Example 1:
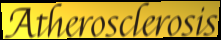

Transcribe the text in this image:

Atherosclerosis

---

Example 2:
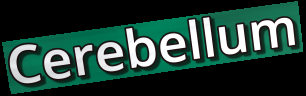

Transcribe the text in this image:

Cerebellum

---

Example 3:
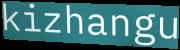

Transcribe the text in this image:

kizhangu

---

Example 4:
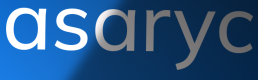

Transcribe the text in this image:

asaryc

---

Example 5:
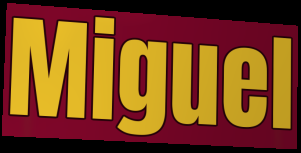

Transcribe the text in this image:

Miguel